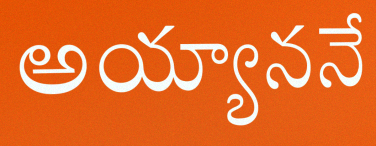
అయ్యాననే